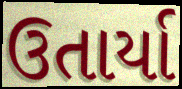
ઉતાર્યા